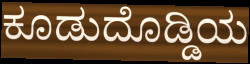
ಕೂಡುದೊಡ್ಡಿಯ